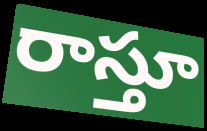
రాస్తూ